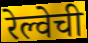
रेल्वेची